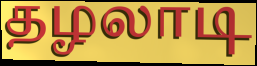
தழலாடி